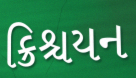
ક્રિશ્ચયન